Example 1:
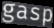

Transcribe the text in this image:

gasp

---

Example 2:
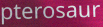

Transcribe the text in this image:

pterosaur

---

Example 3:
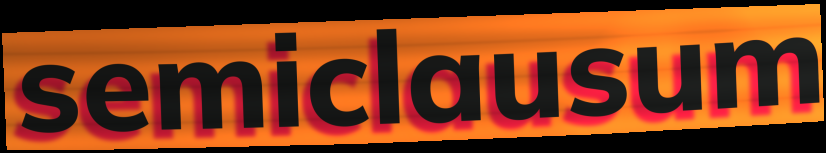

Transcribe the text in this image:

semiclausum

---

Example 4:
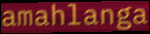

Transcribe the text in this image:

amahlanga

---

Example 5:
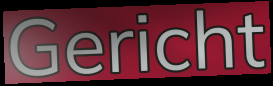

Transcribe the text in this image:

Gericht